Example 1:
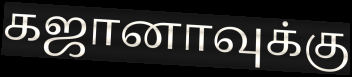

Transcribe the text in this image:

கஜானாவுக்கு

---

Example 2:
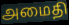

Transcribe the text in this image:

அமைதி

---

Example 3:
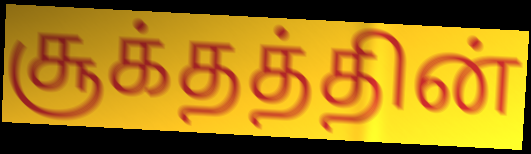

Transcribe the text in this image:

சூக்தத்தின்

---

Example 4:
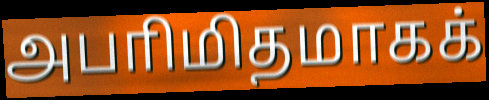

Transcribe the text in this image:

அபரிமிதமாகக்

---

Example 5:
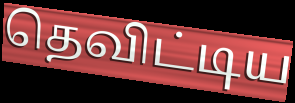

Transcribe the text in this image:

தெவிட்டிய